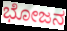
ಭೋಜನ